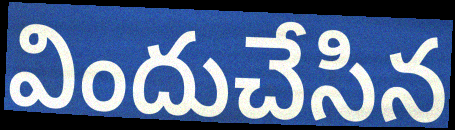
విందుచేసిన